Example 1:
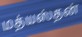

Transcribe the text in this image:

மத்யஸ்தன்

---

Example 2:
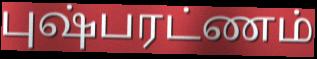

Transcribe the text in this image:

புஷ்பரட்ணம்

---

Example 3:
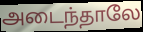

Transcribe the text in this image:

அடைந்தாலே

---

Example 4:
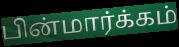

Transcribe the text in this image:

பின்மார்க்கம்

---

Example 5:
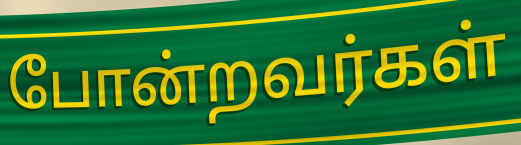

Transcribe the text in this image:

போன்றவர்கள்